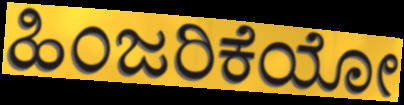
ಹಿಂಜರಿಕೆಯೋ